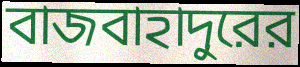
বাজবাহাদুরের